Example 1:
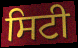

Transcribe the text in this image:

ਸਿਟੀ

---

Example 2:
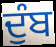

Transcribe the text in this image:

ਦੁੰਬ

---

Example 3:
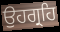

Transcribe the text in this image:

ਉਹਗ੍ਰਹਿ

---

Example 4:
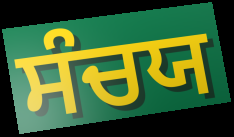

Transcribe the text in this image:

ਸੰਚਯ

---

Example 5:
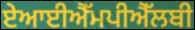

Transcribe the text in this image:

ਏਆਈਐੱਮਪੀਐੱਲਬੀ